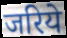
जरिये